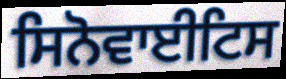
ਸਿਨੋਵਾਈਟਿਸ